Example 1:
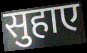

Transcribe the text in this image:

सुहाए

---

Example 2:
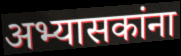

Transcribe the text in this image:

अभ्यासकांना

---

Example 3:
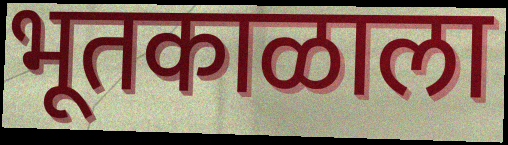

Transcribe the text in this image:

भूतकाळाला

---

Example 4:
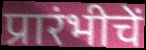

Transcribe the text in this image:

प्रारंभीचें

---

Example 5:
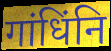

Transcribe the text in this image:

गांधिंनि